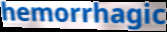
hemorrhagic